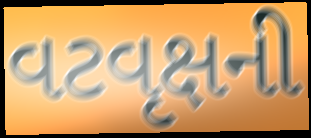
વટવૃક્ષની